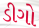
ડીગો